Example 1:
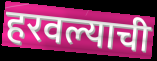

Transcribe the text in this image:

हरवल्याची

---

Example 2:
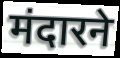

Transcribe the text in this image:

मंदारने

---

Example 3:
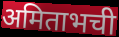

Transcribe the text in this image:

अमिताभची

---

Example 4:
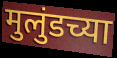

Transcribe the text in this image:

मुलुंडच्या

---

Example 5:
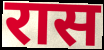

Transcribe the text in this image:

रास